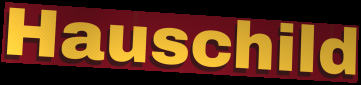
Hauschild